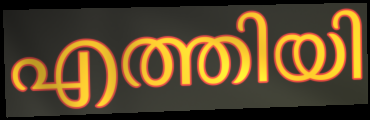
എത്തിയി